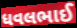
ધવલભાઈ